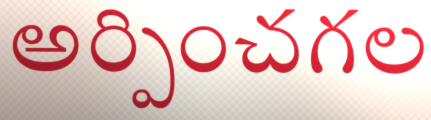
అర్పించగల